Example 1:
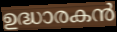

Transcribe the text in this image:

ഉദ്ധാരകൻ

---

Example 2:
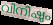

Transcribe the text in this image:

വിനീഷും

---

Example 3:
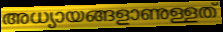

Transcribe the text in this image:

അധ്യായങ്ങളാണുള്ളത്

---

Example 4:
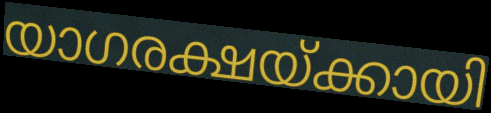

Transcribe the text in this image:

യാഗരക്ഷയ്ക്കായി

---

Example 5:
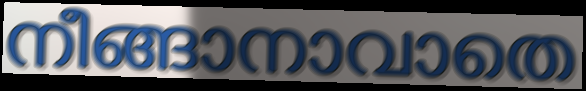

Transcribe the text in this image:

നീങ്ങാനാവാതെ